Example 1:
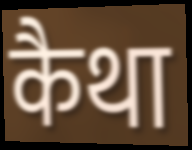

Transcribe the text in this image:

कैथा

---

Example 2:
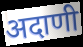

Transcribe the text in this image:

अदाणी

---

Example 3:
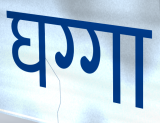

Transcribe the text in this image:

घग्गा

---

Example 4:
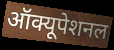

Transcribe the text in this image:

ऑक्यूपेशनल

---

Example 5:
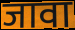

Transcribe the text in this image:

जावा